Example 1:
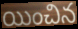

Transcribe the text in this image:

యించిన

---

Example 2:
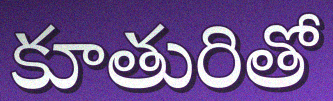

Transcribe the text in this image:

కూతురితో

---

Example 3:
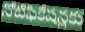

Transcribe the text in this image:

నోటిఫికేషన్లకు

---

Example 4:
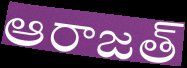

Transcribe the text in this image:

ఆరాజత్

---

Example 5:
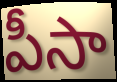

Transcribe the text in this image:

పీసా